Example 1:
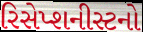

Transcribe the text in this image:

રિસેપ્શનીસ્ટનો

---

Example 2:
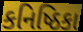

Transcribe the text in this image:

કનિષ્ઠિકા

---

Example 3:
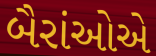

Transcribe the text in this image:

બૈરાંઓએ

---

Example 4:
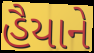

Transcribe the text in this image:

હૈયાને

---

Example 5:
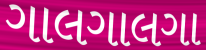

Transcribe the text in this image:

ગાલગાલગા